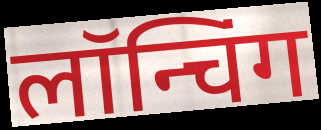
लॉन्चिंग